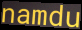
namdu